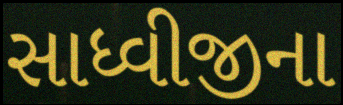
સાધ્વીજીના